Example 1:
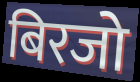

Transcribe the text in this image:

बिरजो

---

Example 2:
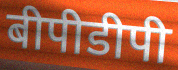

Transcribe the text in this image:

बीपीडीपी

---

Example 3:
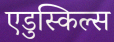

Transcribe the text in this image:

एडुस्किल्स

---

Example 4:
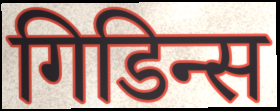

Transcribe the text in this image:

गिडिन्स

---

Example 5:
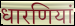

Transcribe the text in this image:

धारणियां